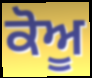
ਕੋਅੂ